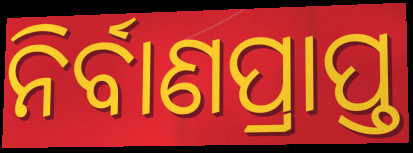
ନିର୍ବାଣପ୍ରାପ୍ତ